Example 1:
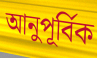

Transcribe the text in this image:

আনুপূর্বিক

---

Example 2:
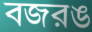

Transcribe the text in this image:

বজরঙ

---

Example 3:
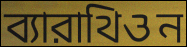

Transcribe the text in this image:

ব্যারাথিওন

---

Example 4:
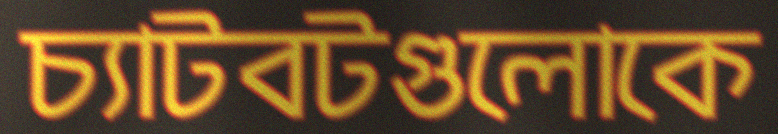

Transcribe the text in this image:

চ্যাটবটগুলোকে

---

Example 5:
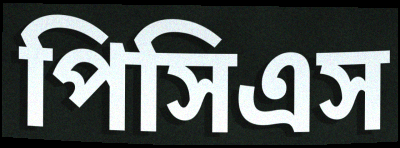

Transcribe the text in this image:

পিসিএস